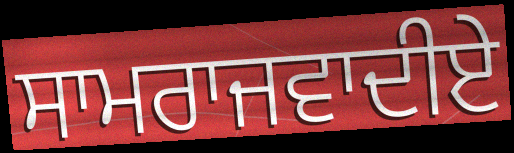
ਸਾਮਰਾਜਵਾਦੀਏ